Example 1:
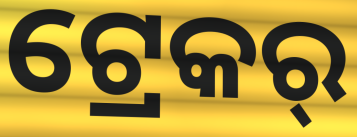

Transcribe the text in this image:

ଟ୍ରେକର୍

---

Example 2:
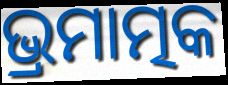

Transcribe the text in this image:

ଭ୍ରମାତ୍ମକ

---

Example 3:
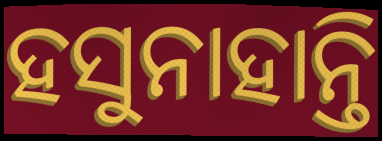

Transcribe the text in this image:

ହସୁନାହାନ୍ତି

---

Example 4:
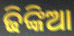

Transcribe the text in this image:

ଢିଙ୍କିଆ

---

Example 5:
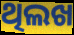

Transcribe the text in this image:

ଥିଲଖ